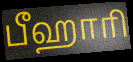
பீஹாரி